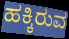
ಹಕ್ಕಿರುವ